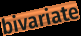
bivariate